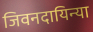
जिवनदायिन्या